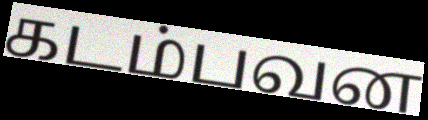
கடம்பவன